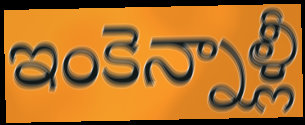
ఇంకెన్నాళ్లీ